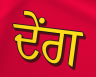
ਦੇਂਗ